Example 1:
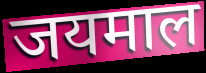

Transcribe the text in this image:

जयमाल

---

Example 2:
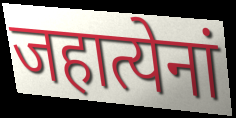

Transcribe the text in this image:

जहात्येनां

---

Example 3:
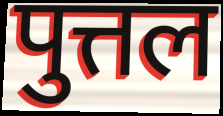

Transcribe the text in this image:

पुत्तल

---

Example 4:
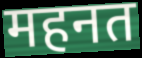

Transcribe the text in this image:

महनत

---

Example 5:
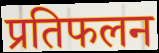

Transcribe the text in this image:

प्रतिफलन